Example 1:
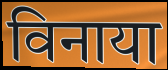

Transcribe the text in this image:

विनाया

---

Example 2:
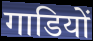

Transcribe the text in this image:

गाडियों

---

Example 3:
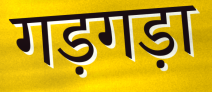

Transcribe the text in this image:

गड़गड़ा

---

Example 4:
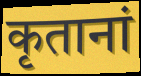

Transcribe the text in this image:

कृतानां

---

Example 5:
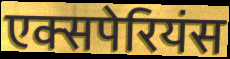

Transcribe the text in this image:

एक्सपेरियंस